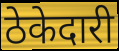
ठेकेदारी